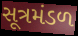
સૂત્રમંડળ